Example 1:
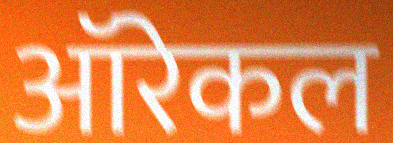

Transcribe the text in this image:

ऑरेकल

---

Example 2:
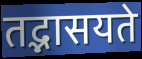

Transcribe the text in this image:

तद्भासयते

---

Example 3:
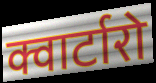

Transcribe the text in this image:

क्वार्टारो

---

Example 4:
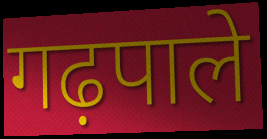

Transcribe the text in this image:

गढ़पाले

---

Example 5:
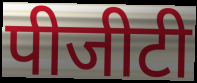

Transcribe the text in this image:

पीजीटी